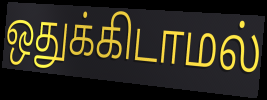
ஒதுக்கிடாமல்